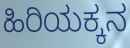
ಹಿರಿಯಕ್ಕನ